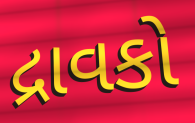
દ્રાવકો